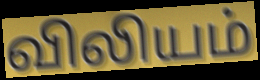
விலியம்